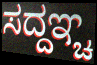
ಸದ್ದಞ್ಚ